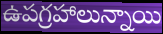
ఉపగ్రహాలున్నాయి